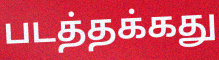
படத்தக்கது